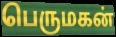
பெருமகன்